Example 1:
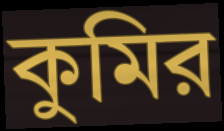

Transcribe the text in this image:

কুমির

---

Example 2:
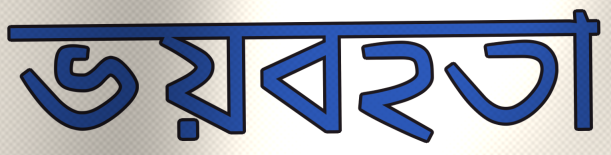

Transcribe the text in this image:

ভয়বহতা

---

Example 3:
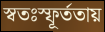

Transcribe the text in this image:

স্বতঃস্ফূর্ততায়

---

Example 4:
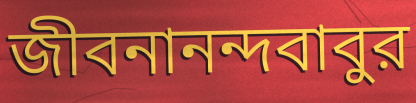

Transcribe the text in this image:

জীবনানন্দবাবুর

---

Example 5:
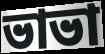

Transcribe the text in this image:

ভাভা